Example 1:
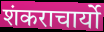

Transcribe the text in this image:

शंकराचार्यो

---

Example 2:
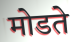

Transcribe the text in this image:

मोडते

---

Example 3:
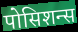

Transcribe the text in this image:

पोसिशन्स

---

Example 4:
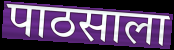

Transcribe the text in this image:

पाठसाला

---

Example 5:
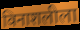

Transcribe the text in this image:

विनाशलीला